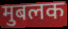
मुबलक